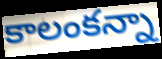
కాలంకన్నా